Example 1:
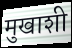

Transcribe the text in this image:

मुखाशी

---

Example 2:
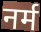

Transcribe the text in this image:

नर्म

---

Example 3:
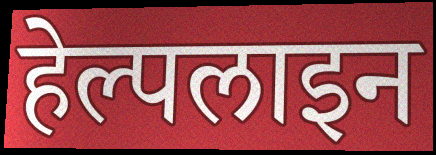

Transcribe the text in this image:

हेल्पलाइन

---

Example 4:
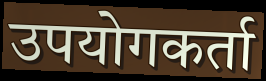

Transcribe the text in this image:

उपयोगकर्ता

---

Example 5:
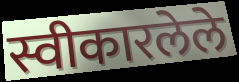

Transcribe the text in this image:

स्वीकारलेले